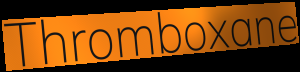
Thromboxane